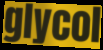
glycol